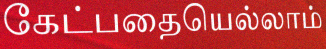
கேட்பதையெல்லாம்